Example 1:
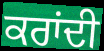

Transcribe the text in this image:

ਕਰਾਂਦੀ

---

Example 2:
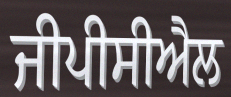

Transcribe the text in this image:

ਜੀਪੀਸੀਐਲ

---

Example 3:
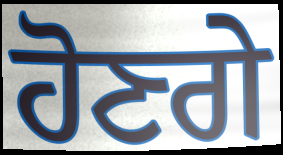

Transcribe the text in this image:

ਹੋਣਗੇ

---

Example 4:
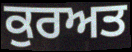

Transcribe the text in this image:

ਕੁਰਅਤ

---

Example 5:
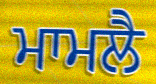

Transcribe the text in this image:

ਮਾਮਲੈ